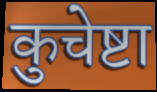
कुचेष्टा